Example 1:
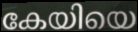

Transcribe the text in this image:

കേയിയെ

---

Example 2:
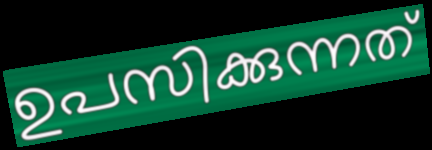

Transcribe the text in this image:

ഉപസിക്കുന്നത്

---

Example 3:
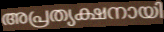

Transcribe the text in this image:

അപ്രത്യക്ഷനായി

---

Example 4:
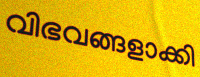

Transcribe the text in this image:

വിഭവങ്ങളാക്കി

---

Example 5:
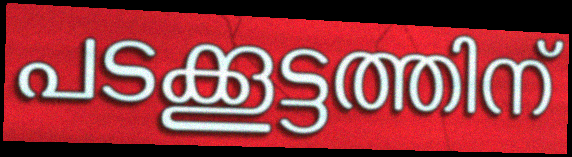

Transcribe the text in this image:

പടക്കൂട്ടത്തിന്